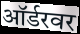
ऑर्डरवर